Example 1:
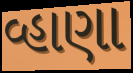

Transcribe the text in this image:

વ્હાણા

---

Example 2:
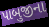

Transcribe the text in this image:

પાબુજીના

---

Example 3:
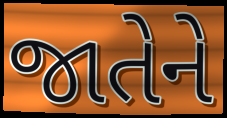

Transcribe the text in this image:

જાતેને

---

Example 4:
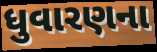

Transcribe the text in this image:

ધુવારણના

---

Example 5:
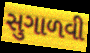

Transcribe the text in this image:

સુગાળવી